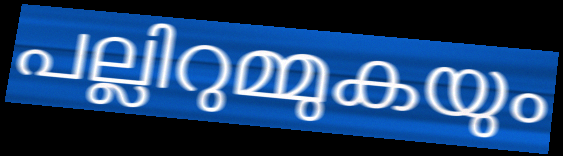
പല്ലിറുമ്മുകയും